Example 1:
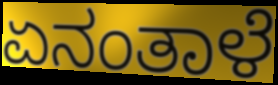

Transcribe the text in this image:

ಏನಂತಾಳೆ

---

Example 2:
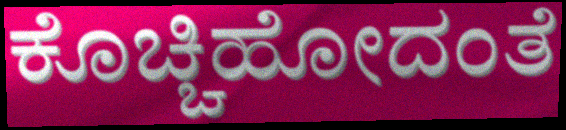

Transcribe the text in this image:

ಕೊಚ್ಚಿಹೋದಂತೆ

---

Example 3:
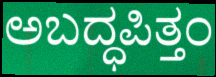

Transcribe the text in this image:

ಅಬದ್ಧಪಿತ್ತಂ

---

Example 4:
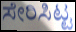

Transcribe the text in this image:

ಸೇರಿಸಿಟ್ಟ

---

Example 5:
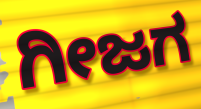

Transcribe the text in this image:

ಗೀಜಗ